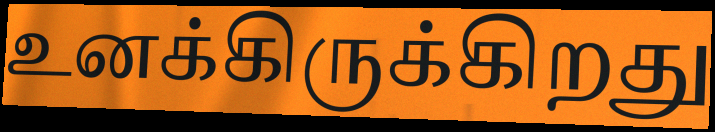
உனக்கிருக்கிறது